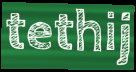
tethij